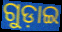
ଗୁଡ଼ାଇ